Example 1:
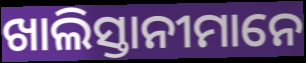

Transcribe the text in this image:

ଖାଲିସ୍ତାନୀମାନେ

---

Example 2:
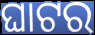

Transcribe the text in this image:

ଘାଟର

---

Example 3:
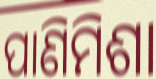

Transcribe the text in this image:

ପାଣିମିଶା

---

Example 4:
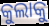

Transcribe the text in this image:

କୁଲାକୁ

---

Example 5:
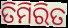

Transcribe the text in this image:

ତିମିରିତ